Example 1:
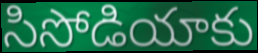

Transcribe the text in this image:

సిసోడియాకు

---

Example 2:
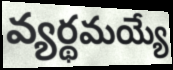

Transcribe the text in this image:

వ్యర్థమయ్యే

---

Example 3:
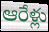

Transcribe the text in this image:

ఆరేళ్లు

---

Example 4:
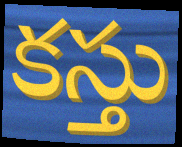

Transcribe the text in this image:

కస్తు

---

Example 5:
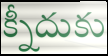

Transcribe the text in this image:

క్నీదుకు